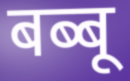
बब्बू